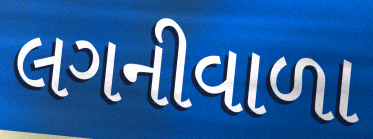
લગનીવાળા